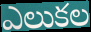
ఎలుకల